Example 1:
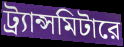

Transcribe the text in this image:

ট্র্যান্সমিটারে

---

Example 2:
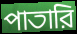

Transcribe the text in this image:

পাতারি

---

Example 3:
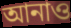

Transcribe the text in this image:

আনাও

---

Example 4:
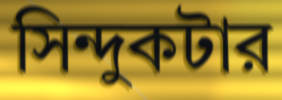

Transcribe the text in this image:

সিন্দুকটার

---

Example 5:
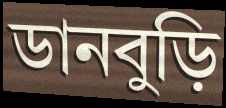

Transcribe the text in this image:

ডানবুড়ি